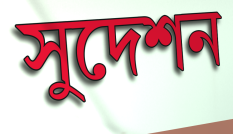
সুদেশন